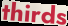
thirds